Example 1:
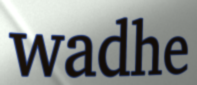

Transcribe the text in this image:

wadhe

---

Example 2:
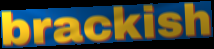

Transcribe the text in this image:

brackish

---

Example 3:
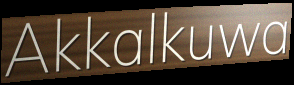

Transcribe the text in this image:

Akkalkuwa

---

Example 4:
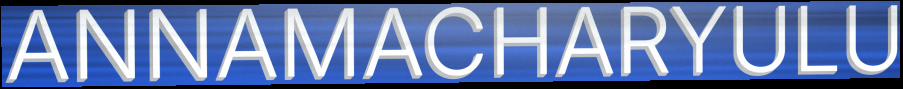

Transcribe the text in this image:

ANNAMACHARYULU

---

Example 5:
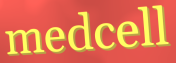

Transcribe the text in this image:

medcell